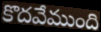
కొదవేముంది